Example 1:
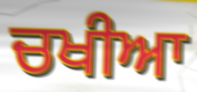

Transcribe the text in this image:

ਚਖੀਆ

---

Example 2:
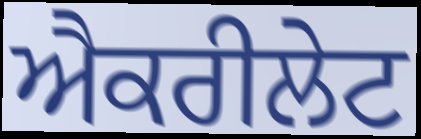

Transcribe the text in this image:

ਐਕਰੀਲੇਟ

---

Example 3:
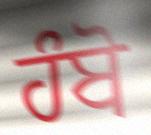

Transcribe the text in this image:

ਹੰਬੋ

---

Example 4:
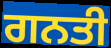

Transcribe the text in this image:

ਗਨਤੀ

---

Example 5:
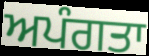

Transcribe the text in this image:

ਅਪੰਗਤਾ